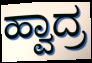
ಹ್ವಾದ್ರ